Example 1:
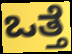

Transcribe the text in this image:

ಒತ್ತೆ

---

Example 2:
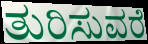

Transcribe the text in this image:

ತುರಿಸುವರೆ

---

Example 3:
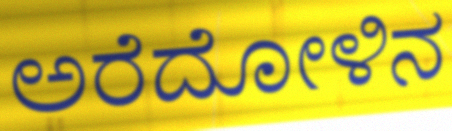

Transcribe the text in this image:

ಅರೆದೋಳಿನ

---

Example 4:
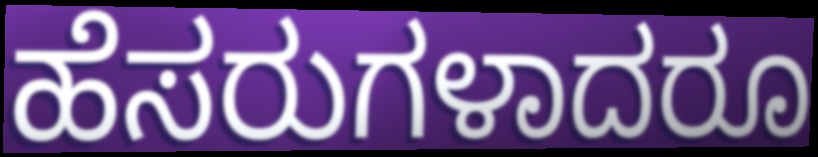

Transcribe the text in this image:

ಹೆಸರುಗಳಾದರೂ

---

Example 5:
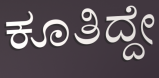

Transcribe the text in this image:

ಕೂತಿದ್ದೇ